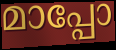
മാപ്പോ